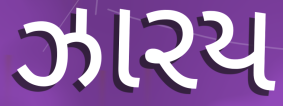
ઝારય